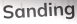
Sanding